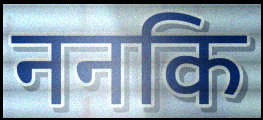
ननकि